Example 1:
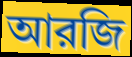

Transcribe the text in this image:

আরজি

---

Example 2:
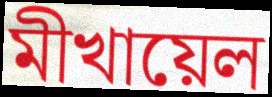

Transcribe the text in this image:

মীখায়েল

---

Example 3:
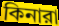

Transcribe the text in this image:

কিনারা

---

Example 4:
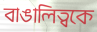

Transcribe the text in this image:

বাঙালিত্বকে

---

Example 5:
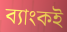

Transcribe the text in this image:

ব্যাংকই